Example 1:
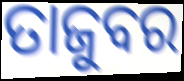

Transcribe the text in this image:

ତାଜୁବର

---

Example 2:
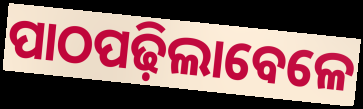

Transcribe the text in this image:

ପାଠପଢ଼ିଲାବେଳେ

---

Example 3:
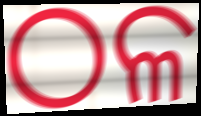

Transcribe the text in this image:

ଠଳ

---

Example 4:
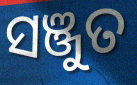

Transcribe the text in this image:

ସଞ୍ଜୁତ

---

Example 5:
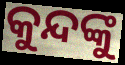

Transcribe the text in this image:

କୁନ୍ଦଙ୍କୁ